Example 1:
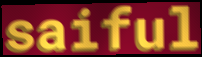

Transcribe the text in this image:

saiful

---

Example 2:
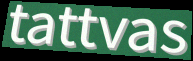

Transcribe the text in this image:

tattvas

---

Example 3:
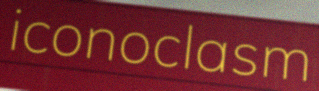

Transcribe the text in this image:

iconoclasm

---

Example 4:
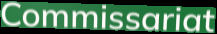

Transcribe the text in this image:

Commissariat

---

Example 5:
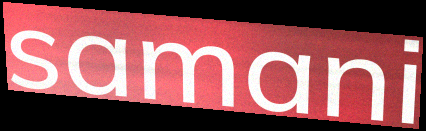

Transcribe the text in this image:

samani